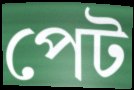
পেট